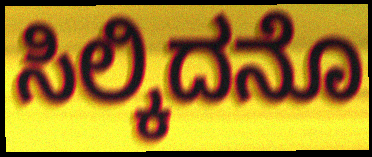
ಸಿಲ್ಕಿದನೊ